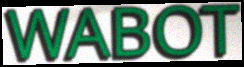
WABOT